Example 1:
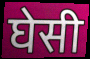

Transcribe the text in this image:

घेसी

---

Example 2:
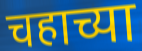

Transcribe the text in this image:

चहाच्या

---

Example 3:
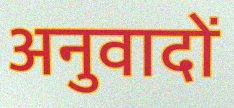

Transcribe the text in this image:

अनुवादों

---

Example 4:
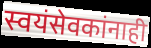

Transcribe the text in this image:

स्वयंसेवकांनाही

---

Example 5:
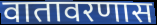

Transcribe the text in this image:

वातावरणास